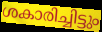
ശകാരിച്ചിട്ടും